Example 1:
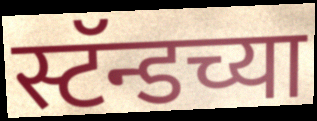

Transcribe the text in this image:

स्टॅन्डच्या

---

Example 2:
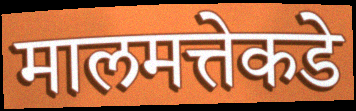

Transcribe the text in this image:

मालमत्तेकडे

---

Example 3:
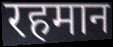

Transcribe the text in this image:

रहमान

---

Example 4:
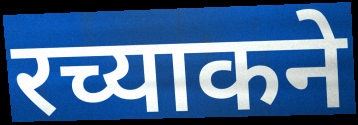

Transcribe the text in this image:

रच्याकने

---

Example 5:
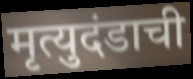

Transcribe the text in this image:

मृत्युदंडाची